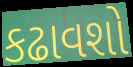
કઢાવશો